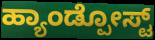
ಹ್ಯಾಂಡ್ಪೋಸ್ಟ್